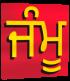
ਜੰਮੂ